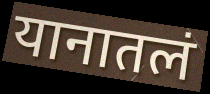
यानातलं